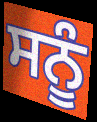
ਸਨੂੰ